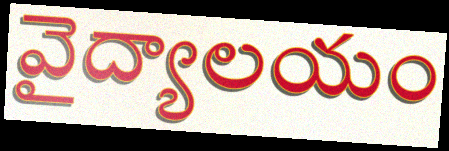
వైద్యాలయం